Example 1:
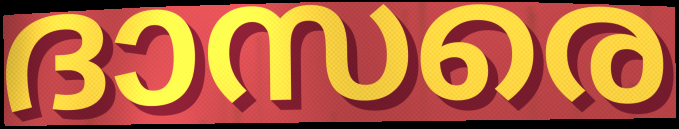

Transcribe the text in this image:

ദാസരെ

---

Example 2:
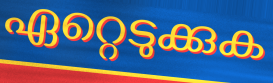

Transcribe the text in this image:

ഏറ്റെടുക്കുക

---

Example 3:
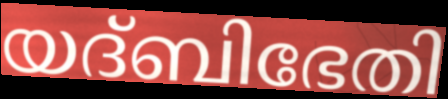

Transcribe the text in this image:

യദ്ബിഭേതി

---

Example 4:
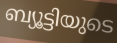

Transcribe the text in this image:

ബ്യൂട്ടിയുടെ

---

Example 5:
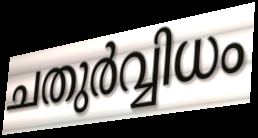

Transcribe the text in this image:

ചതുർവ്വിധം